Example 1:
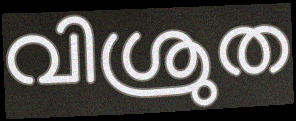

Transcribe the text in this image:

വിശ്രുത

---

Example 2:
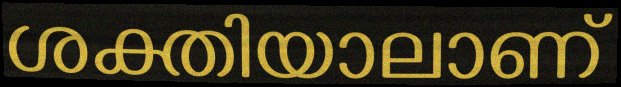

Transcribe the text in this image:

ശക്തിയാലാണ്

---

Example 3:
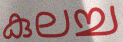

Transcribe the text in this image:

കുലച്ച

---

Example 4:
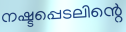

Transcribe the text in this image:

നഷ്ടപ്പെടലിന്റെ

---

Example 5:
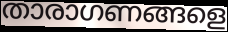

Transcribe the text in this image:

താരാഗണങ്ങളെ